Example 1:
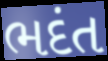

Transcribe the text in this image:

ભદંત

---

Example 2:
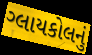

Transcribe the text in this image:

ગ્લાયકોલનું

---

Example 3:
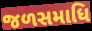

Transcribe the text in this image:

જળસમાધિ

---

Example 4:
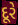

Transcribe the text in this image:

દૂરે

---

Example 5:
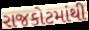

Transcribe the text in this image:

રાજકોટમાંથી